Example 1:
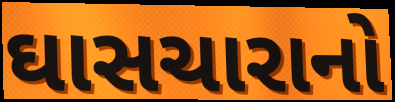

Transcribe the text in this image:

ઘાસચારાનો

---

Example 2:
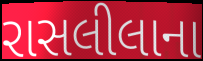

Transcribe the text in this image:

રાસલીલાના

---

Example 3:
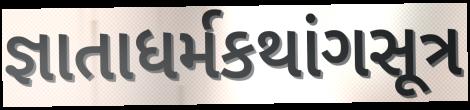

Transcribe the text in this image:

જ્ઞાતાધર્મકથાંગસૂત્ર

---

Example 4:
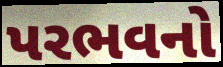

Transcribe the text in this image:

પરભવનો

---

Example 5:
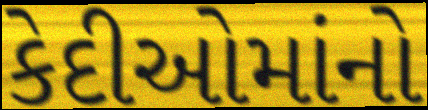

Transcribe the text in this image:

કેદીઓમાંનો